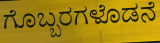
ಗೊಬ್ಬರಗಳೊಡನೆ